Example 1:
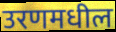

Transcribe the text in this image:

उरणमधील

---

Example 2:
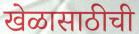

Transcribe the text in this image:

खेळासाठीची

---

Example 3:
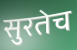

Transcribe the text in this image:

सुरतेच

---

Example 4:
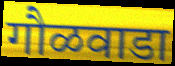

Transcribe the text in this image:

गौळवाडा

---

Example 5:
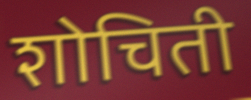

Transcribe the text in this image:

शोचिती